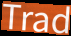
Trad